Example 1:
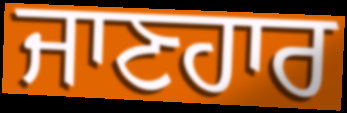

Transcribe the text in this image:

ਜਾਣਹਾਰ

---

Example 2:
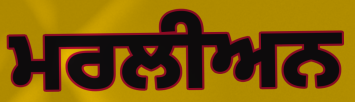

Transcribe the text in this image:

ਮਰਲੀਅਨ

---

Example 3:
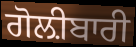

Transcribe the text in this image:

ਗੋਲ਼ੀਬਾਰੀ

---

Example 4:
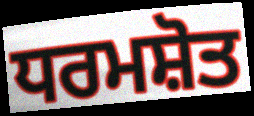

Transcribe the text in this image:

ਧਰਮਸ਼ੋਤ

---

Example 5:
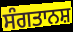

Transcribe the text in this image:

ਸੰਗਤਾਨਸ਼